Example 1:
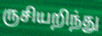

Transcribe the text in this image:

ருசியறிந்து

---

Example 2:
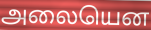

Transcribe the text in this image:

அலையென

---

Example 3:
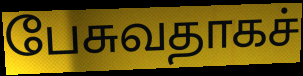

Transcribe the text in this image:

பேசுவதாகச்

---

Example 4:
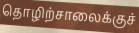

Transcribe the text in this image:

தொழிற்சாலைக்குச்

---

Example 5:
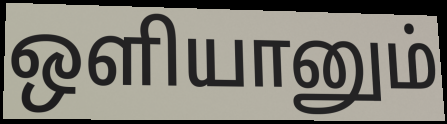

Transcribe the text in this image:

ஒளியானும்